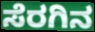
ಸೆರಗಿನ